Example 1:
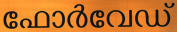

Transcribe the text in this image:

ഫോർവേഡ്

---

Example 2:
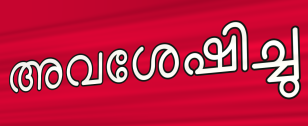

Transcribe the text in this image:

അവശേഷിച്ചു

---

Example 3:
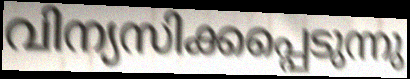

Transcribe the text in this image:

വിന്യസിക്കപ്പെടുന്നു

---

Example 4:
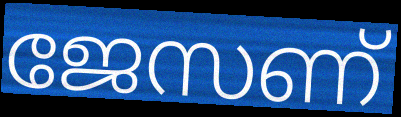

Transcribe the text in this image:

ജേസണ്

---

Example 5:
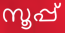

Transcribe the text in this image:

സൂപ്പ്